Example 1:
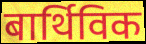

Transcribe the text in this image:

बार्थिविक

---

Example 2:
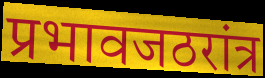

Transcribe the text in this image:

प्रभावजठरांत्र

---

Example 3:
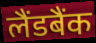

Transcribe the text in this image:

लैंडबैंक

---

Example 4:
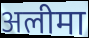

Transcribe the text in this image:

अलीमा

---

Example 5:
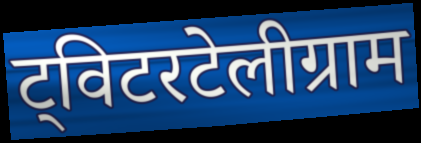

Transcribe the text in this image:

ट्विटरटेलीग्राम